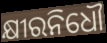
କ୍ଷୀରନିଧୌ